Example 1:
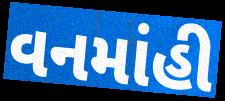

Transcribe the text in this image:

વનમાંહી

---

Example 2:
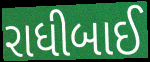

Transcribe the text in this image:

રાધીબાઈ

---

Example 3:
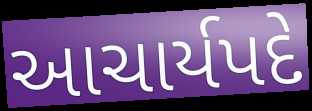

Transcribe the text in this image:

આચાર્યપદે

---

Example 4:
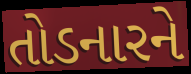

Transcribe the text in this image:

તોડનારને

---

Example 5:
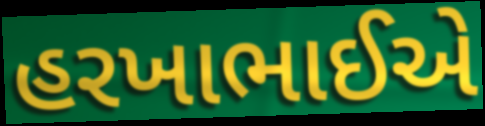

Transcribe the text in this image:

હરખાભાઈએ